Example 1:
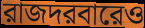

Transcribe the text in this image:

রাজদরবারেও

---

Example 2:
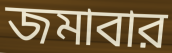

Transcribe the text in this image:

জমাবার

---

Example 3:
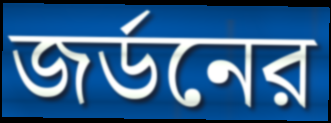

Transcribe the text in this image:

জর্ডনের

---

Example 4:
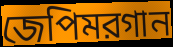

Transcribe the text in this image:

জেপিমরগান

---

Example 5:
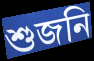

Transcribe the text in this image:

শুজনি